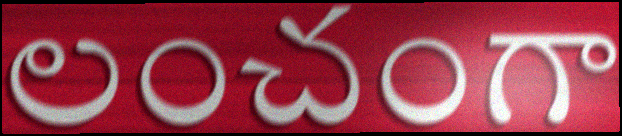
లంచంగా